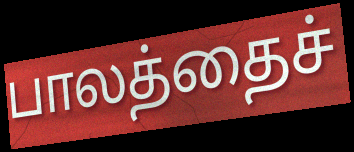
பாலத்தைச்